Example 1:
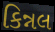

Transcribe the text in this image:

કિન્નલ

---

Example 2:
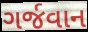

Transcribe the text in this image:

ગર્જવાન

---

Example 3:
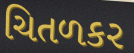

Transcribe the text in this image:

ચિતળકર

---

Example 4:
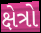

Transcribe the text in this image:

ક્ષેત્રો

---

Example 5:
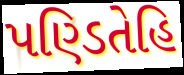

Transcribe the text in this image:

પણ્ડિતેહિ